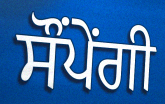
ਸੌਂਪੇਂਗੀ